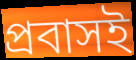
প্রবাসই